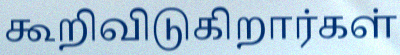
கூறிவிடுகிறார்கள்